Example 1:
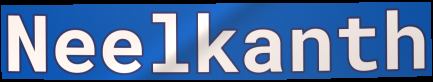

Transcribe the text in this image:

Neelkanth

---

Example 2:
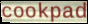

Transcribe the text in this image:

cookpad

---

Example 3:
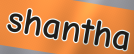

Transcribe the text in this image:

shantha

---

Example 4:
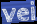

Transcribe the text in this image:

vei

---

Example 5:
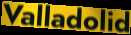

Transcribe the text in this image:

Valladolid